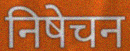
निषेचन